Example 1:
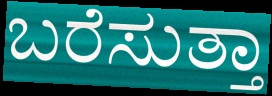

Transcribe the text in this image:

ಬರೆಸುತ್ತಾ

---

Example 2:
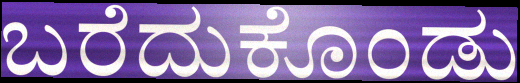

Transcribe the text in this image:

ಬರೆದುಕೊಂಡು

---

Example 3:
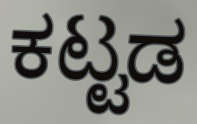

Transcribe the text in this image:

ಕಟ್ಟಡ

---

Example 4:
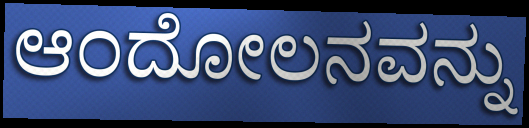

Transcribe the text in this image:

ಆಂದೋಲನವನ್ನು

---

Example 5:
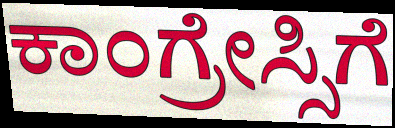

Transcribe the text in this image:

ಕಾಂಗ್ರೇಸ್ಸಿಗೆ